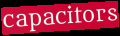
capacitors